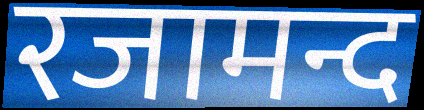
रजामन्द